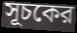
সূচকের